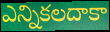
ఎన్నికలదాకా